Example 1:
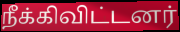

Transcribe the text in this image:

நீக்கிவிட்டனர்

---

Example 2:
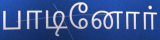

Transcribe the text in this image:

பாடினோர்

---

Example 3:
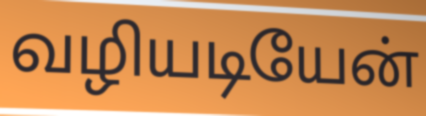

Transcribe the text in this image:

வழியடியேன்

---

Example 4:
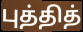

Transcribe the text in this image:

புத்தித்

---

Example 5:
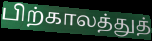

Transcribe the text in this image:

பிற்காலத்துத்